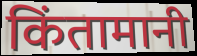
किंतामानी